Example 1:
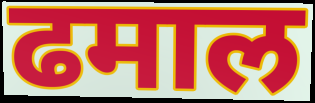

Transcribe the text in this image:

ढमाल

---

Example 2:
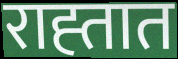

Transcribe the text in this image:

राह्तात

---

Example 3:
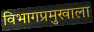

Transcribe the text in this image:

विभागप्रमुखाला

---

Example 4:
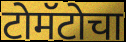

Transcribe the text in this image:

टोमॅटोचा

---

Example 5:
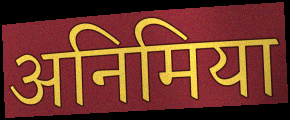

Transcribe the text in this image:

अनिमिया